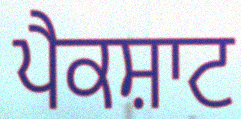
ਪੈਕਸ਼ਾਟ